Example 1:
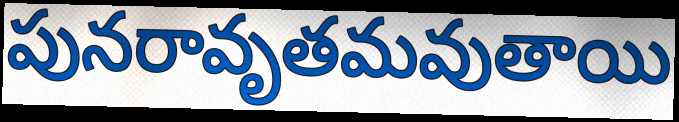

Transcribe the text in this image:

పునరావృతమవుతాయి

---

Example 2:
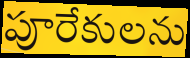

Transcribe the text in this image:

పూరేకులను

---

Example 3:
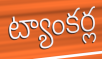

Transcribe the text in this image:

ట్యాంకర్ల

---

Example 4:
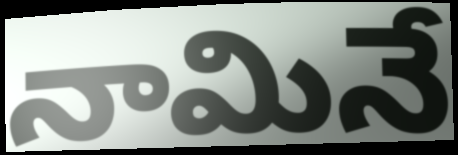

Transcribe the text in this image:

నామినే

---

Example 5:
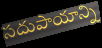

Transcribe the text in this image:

సదుపాయాన్ని